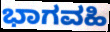
ಭಾಗವಹಿ